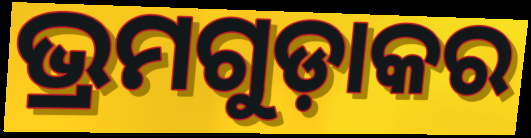
ଭ୍ରମଗୁଡ଼ାକର